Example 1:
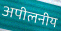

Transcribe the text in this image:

अपीलनीय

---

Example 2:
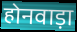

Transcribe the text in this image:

होनवाड़ा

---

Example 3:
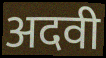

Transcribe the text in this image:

अदवी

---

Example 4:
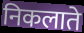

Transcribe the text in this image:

निकलाते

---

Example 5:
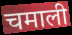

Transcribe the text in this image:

चमाली